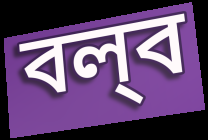
বল্‌ব